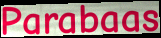
Parabaas